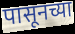
पासूनच्या